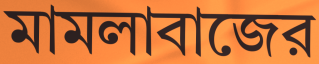
মামলাবাজের